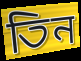
তিন